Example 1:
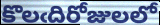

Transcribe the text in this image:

కొలఁదిరోజులలో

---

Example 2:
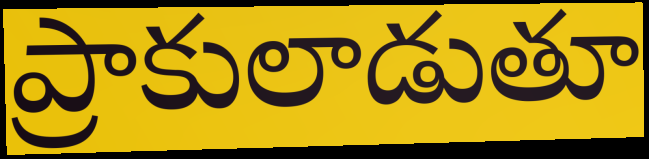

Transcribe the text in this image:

ప్రాకులాడుతూ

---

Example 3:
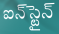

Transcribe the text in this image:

ఐన్‌స్టైన్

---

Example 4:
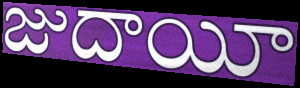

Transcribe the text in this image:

జుదాయీ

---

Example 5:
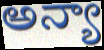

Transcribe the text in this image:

అన్యా